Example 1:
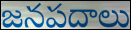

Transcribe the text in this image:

జనపదాలు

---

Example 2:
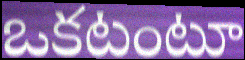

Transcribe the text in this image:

ఒకటంటూ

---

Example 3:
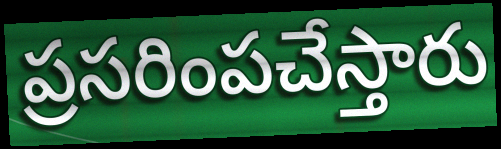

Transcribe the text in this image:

ప్రసరింపచేస్తారు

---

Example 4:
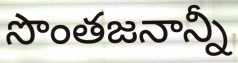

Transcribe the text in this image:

సొంతజనాన్నీ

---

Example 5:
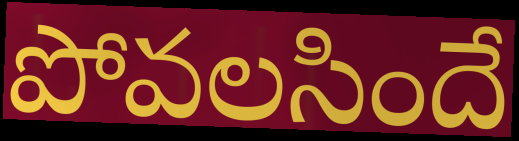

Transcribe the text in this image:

పోవలసిందే